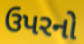
ઉપરનો